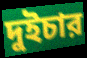
দুইচার